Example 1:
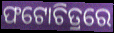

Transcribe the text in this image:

ଫଟୋଚିତ୍ରରେ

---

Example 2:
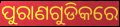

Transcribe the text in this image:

ପୁରାଣଗୁଡିକରେ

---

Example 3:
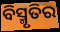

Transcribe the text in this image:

ବିସ୍ମୃତିର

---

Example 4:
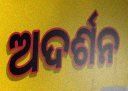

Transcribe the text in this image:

ଅଦର୍ଶନ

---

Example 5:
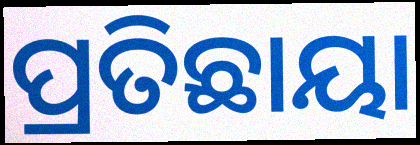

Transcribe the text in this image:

ପ୍ରତିଛାୟା